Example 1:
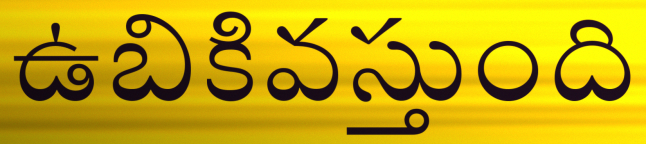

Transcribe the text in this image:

ఉబికివస్తుంది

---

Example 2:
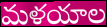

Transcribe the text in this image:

మళయాల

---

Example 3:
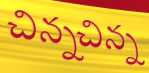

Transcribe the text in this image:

చిన్నచిన్న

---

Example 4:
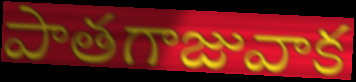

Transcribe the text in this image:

పాతగాజువాక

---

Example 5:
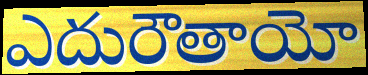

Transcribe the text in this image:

ఎదురౌతాయో